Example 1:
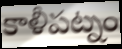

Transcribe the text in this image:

కాళీపట్నం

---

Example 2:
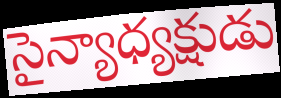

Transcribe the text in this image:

సైన్యాధ్యక్షుడు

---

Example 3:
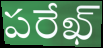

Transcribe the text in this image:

పరేఖ్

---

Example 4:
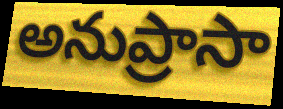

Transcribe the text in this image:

అనుప్రాసా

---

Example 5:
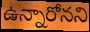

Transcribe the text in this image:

ఉన్నారోనని